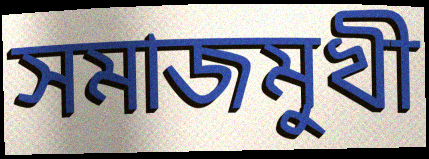
সমাজমুখী